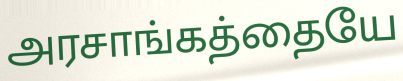
அரசாங்கத்தையே